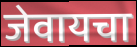
जेवायचा